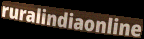
ruralindiaonline